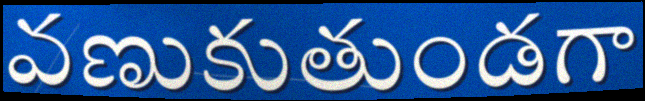
వణుకుతుండగా